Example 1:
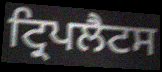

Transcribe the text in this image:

ਟ੍ਰਿਪਲੈਟਸ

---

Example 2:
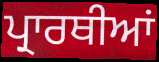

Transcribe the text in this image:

ਪ੍ਰਾਰਥੀਆਂ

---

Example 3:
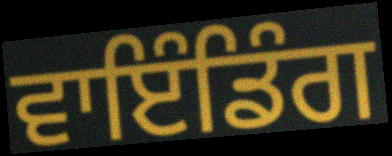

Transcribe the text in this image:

ਵਾਇੰਡਿੰਗ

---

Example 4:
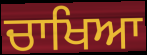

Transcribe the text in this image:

ਚਾਖਿਆ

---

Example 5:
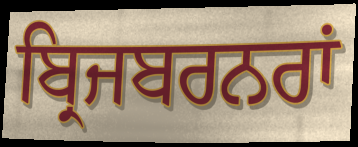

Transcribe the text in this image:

ਬ੍ਰਿਜਬਰਨਰਾਂ